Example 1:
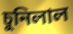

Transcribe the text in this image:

চুনিলাল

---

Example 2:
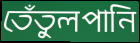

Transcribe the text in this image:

তেঁতুলপানি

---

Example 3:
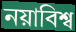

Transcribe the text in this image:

নয়াবিশ্ব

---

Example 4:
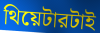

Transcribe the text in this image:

থিয়েটারটাই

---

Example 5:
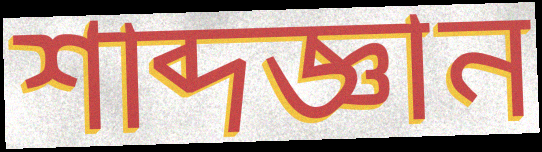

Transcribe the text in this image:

শাব্দজ্ঞান